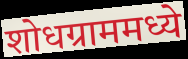
शोधग्राममध्ये